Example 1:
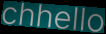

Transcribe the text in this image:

chhello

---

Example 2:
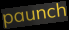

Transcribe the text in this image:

paunch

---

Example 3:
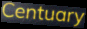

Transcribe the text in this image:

Centuary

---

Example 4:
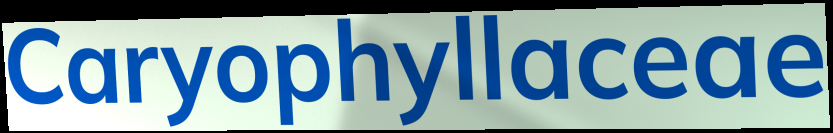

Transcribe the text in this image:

Caryophyllaceae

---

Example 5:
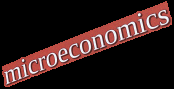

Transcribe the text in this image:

microeconomics